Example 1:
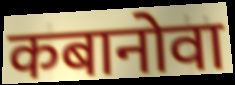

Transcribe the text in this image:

कबानोवा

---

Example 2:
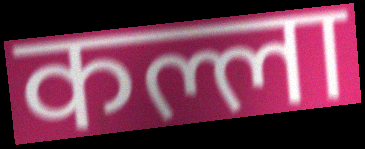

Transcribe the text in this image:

कल्ला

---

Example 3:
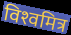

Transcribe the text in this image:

विश्वमित्र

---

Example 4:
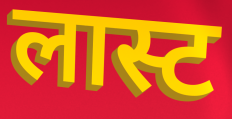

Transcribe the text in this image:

लास्ट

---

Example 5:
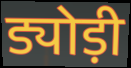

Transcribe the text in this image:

ड्योड़ी